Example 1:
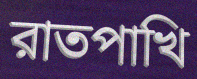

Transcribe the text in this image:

রাতপাখি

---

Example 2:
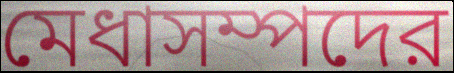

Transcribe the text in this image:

মেধাসম্পদের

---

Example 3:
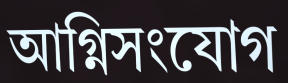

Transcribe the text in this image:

আগ্নিসংযোগ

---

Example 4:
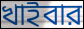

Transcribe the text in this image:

খাইবার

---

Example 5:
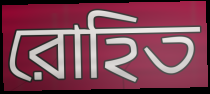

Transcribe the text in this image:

রোহিত